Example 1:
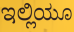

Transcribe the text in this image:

ಇಲ್ಲಿಯೂ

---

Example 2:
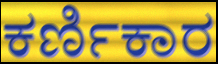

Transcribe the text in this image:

ಕರ್ಣಿಕಾರ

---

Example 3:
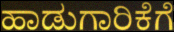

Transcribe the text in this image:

ಹಾಡುಗಾರಿಕೆಗೆ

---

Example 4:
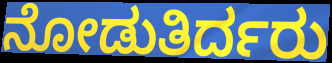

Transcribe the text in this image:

ನೋಡುತಿರ್ದರು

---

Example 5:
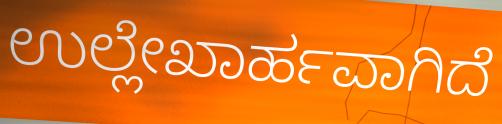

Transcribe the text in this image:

ಉಲ್ಲೇಖಾರ್ಹವಾಗಿದೆ